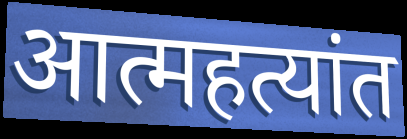
आत्महत्यांत